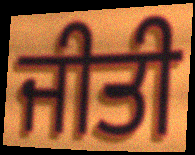
ਜੀਤੀ